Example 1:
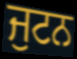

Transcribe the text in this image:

ਜੁਟਨ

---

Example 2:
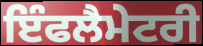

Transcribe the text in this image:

ਇੰਫਲੈਮੇਟਰੀ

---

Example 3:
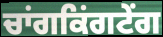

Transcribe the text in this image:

ਚਾਂਗਕਿਂਗਟੇਂਗ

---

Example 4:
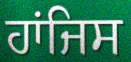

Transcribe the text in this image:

ਹਾਂਜਿਸ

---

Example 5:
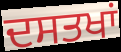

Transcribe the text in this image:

ਦਸਤਖਾਂ